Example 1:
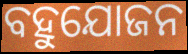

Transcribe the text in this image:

ବହୁଯୋଜନ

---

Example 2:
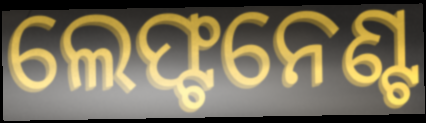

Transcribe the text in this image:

ଲେଫ୍ଟନେଣ୍ଟ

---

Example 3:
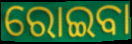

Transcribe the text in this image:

ରୋଇବା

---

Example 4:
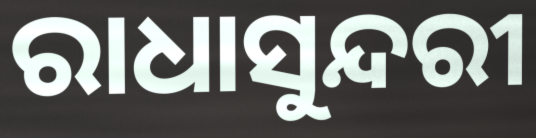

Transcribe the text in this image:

ରାଧାସୁନ୍ଦରୀ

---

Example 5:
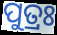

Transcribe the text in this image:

ପୁତ୍ରଃ